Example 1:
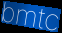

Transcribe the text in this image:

bmtc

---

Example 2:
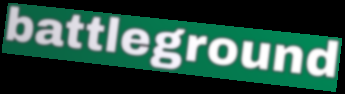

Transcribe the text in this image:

battleground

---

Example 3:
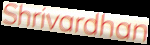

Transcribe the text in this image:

Shrivardhan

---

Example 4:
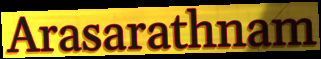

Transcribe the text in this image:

Arasarathnam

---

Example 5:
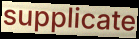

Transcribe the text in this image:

supplicate